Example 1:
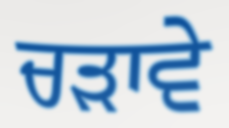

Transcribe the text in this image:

ਚੜਾਵੇ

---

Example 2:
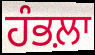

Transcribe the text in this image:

ਹੰਭਲ਼ਾ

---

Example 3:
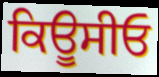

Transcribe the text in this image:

ਕਿਊਸੀਓ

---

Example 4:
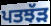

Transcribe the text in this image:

ਪਤਝੱੜ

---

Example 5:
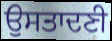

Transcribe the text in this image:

ਉਸਤਾਦਣੀ